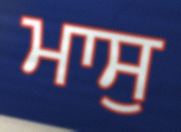
ਮਾਸੁ